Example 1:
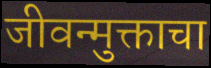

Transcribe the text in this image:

जीवन्मुक्ताचा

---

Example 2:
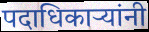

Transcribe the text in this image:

पदाधिकार्‍यांनी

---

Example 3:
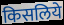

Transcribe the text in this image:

किसलिये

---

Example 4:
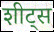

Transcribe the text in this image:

शीट्स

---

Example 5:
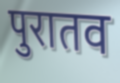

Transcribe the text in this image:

पुरातव